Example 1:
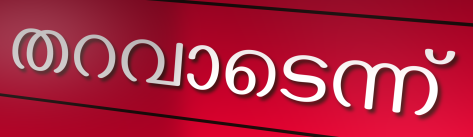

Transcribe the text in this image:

തറവാടെന്ന്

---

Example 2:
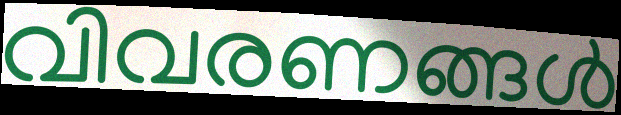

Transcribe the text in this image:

വിവരണങ്ങൾ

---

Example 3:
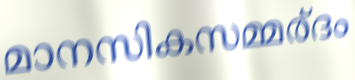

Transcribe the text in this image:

മാനസികസമ്മര്ദം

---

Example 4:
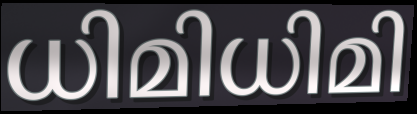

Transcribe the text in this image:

ധിമിധിമി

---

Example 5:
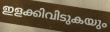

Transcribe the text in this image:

ഇളക്കിവിടുകയും